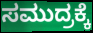
ಸಮುದ್ರಕ್ಕೆ